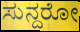
ಸುನ್ದರೋ